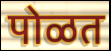
पोळत